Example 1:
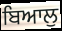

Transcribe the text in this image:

ਬਿਆਲੁ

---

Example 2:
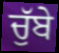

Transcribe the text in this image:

ਚੁੱਬੇ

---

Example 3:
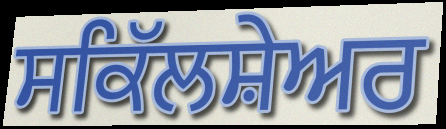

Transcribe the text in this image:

ਸਕਿੱਲਸ਼ੇਅਰ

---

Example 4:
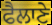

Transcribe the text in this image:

ਫੈਲਾਣੇ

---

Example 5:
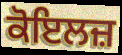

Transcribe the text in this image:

ਕੋਇਲਜ਼